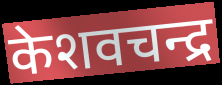
केशवचन्द्र